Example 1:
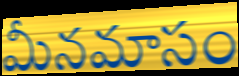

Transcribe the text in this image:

మీనమాసం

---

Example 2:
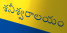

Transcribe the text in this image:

శనీశ్వరాలయం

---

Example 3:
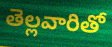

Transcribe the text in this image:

తెల్లవారితో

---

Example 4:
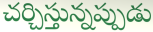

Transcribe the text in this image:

చర్చిస్తున్నప్పుడు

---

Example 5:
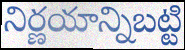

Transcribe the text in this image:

నిర్ణయాన్నిబట్టి